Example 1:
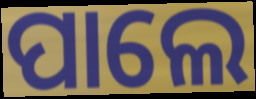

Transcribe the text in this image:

ପାଲେ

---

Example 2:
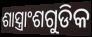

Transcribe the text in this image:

ଶାସ୍ତ୍ରାଂଶଗୁଡିକ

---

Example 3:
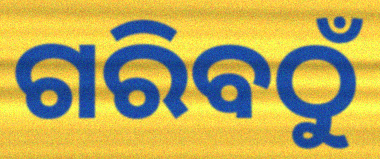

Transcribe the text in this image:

ଗରିବଠୁଁ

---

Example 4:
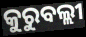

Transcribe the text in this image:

କୁରୁବଲ୍ଲୀ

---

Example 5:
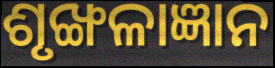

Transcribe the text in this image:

ଶୃଙ୍ଖଳାଜ୍ଞାନ